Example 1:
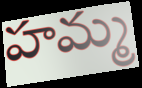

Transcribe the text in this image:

హమ్మ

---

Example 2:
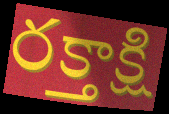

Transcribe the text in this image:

రక్తాక్షి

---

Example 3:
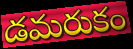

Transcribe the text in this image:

డమరుకం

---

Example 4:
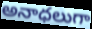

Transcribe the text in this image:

అనాధలుగా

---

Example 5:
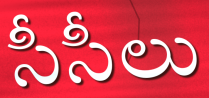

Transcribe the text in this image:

సీసీలు